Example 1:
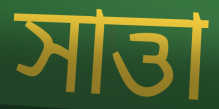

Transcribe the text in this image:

সাত্তা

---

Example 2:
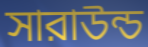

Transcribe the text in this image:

সারাউন্ড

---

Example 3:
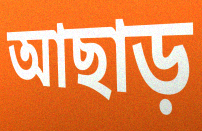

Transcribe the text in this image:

আছাড়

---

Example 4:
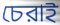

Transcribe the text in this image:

চেরাই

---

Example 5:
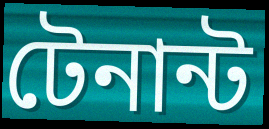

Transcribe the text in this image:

টেনান্ট